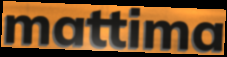
mattima